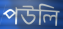
পউলি